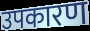
उपकारण